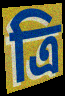
ত্রি